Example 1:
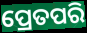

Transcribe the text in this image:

ପ୍ରେତପରି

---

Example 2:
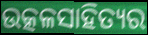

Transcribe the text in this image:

ଉତ୍କଳସାହିତ୍ୟର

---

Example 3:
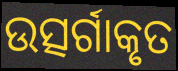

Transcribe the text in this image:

ଉତ୍ସର୍ଗାକୃତ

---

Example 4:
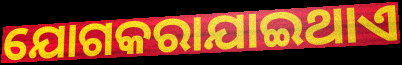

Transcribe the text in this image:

ଯୋଗକରାଯାଇଥାଏ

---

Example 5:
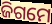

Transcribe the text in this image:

ଜିଗମେ